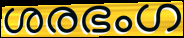
ശരഭംഗ